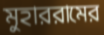
মুহাররামের